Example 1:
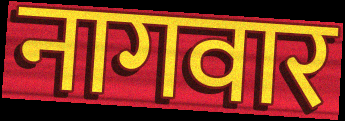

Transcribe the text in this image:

नागवार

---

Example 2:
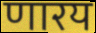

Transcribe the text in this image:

णारय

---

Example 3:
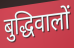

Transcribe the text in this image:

बुद्धिवालों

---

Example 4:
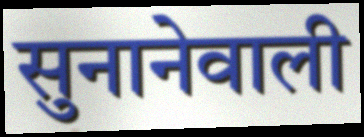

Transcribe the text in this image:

सुनानेवाली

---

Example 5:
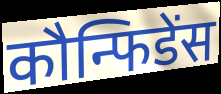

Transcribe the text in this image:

कौन्फिडेंस